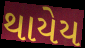
થાયેય